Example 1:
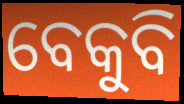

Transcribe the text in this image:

ବେକୁବି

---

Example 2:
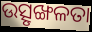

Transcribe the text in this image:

ଉତ୍ସୃଙ୍ଖଳତା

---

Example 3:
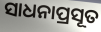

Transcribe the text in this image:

ସାଧନାପ୍ରସୂତ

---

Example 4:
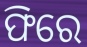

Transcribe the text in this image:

ଫିରେ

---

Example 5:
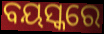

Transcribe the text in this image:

ବୟସ୍କରେ